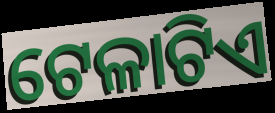
ଟେଳାଟିଏ